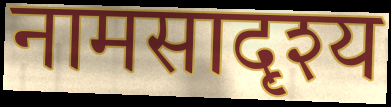
नामसादृश्य